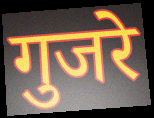
गुजरे